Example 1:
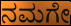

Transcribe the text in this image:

ನಮಗೇ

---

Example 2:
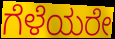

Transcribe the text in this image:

ಗೆಳೆಯರೇ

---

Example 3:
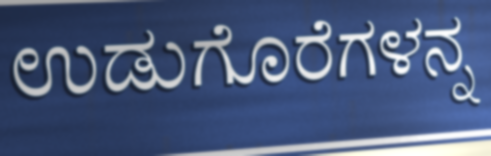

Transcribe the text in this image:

ಉಡುಗೊರೆಗಳನ್ನ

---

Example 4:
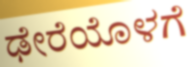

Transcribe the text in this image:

ಢೇರೆಯೊಳಗೆ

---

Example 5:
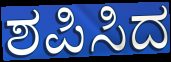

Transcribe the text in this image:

ಶಪಿಸಿದ